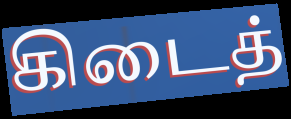
கிடைத்